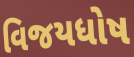
વિજયધોષ